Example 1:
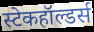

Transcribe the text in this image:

स्टेकहॉल्डर्स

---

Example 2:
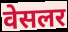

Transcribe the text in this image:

वेसलर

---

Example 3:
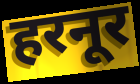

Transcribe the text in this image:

हरनूर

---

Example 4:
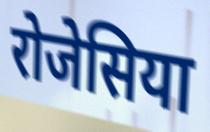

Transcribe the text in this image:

रोजेसिया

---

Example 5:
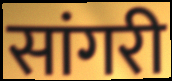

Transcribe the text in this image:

सांगरी